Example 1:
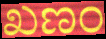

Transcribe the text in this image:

ಖಣಂ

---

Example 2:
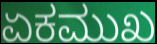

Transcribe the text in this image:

ಏಕಮುಖ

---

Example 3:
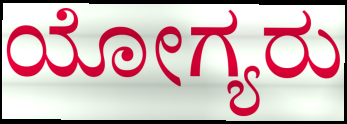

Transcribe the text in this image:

ಯೋಗ್ಯರು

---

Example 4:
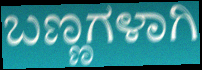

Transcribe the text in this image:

ಬಣ್ಣಗಳಾಗಿ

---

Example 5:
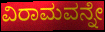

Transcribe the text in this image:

ವಿರಾಮವನ್ನೇ